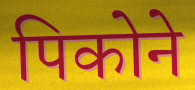
पिकोने